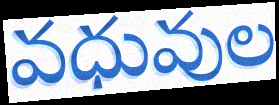
వధువుల